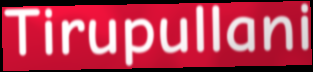
Tirupullani